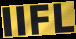
IIFL